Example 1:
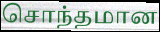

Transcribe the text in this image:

சொந்தமான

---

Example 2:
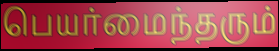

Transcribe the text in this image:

பெயர்மைந்தரும்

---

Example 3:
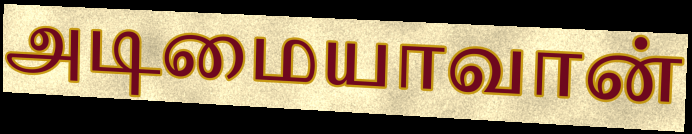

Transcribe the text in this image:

அடிமையாவான்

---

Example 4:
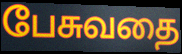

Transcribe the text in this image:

பேசுவதை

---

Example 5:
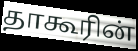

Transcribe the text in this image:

தாகூரின்